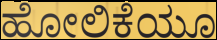
ಹೋಲಿಕೆಯೂ